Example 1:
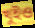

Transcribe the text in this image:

খুইও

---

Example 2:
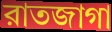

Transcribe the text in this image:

রাতজাগা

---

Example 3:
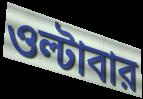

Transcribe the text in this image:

ওল্টাবার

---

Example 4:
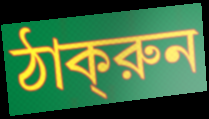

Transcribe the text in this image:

ঠাক্‌রুন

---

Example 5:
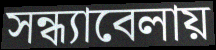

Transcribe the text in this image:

সন্ধ্যাবেলায়